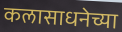
कलासाधनेच्या